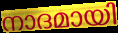
നാദമായി